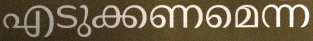
എടുക്കണമെന്ന